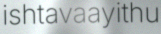
ishtavaayithu